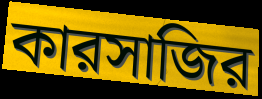
কারসাজির